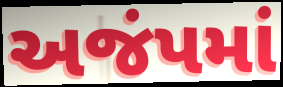
અજંપમાં